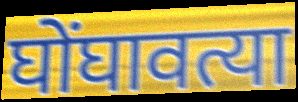
घोंघावत्या